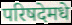
परिषदेमधे